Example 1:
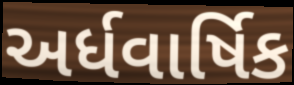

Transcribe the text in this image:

અર્ધવાર્ષિક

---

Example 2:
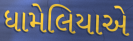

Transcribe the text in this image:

ધામેલિયાએ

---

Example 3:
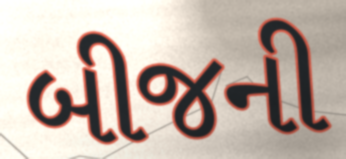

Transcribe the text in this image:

બીજની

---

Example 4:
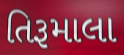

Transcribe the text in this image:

તિરૂમાલા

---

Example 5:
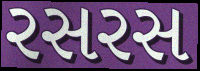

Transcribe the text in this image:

રસરસ